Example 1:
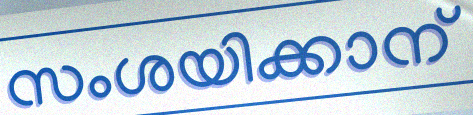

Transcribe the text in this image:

സംശയിക്കാന്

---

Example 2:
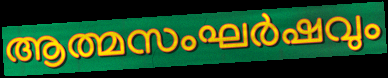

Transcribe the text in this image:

ആത്മസംഘർഷവും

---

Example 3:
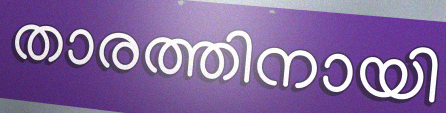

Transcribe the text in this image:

താരത്തിനായി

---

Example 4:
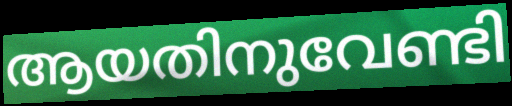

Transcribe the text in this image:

ആയതിനുവേണ്ടി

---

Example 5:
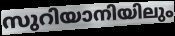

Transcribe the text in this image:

സുറിയാനിയിലും